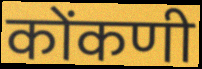
कोंकणी